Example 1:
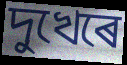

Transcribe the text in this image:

দুখেৰে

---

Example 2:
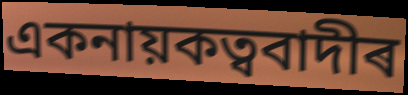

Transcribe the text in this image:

একনায়কত্ববাদীৰ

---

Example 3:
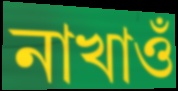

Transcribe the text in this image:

নাখাওঁ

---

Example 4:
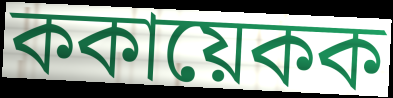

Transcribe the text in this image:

ককায়েকক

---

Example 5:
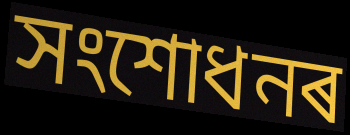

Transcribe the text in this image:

সংশোধনৰ